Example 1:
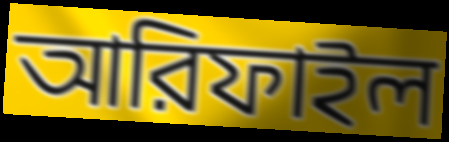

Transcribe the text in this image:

আরিফাইল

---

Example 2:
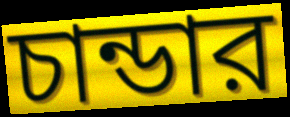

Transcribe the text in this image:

চান্ডার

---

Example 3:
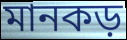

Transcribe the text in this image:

মানকড়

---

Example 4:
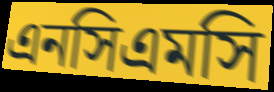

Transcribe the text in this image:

এনসিএমসি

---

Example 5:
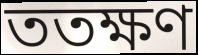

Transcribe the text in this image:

ততক্ষণ